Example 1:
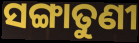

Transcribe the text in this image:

ସଙ୍ଗାତୁଣୀ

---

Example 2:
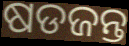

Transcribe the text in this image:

ଷଡଜନ୍ତ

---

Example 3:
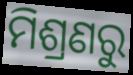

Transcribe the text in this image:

ମିଶ୍ରଣରୁ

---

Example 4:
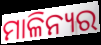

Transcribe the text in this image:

ମାଳିନ୍ୟର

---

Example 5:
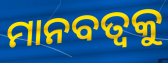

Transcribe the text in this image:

ମାନବତ୍ବକୁ